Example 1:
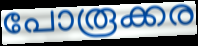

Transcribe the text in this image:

പോരൂക്കര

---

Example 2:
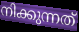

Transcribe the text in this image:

നിക്കുന്നത്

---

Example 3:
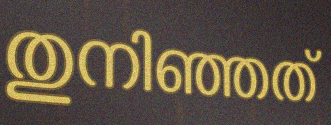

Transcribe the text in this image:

തുനിഞ്ഞത്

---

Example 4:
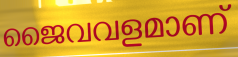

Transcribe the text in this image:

ജൈവവളമാണ്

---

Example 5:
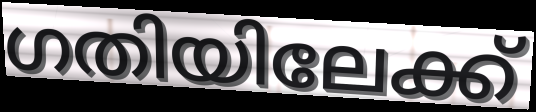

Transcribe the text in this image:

ഗതിയിലേക്ക്